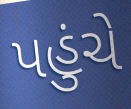
પહુંચે